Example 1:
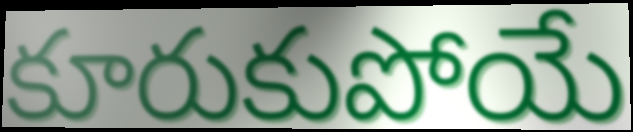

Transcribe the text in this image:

కూరుకుపోయే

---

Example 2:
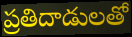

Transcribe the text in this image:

ప్రతిదాడులతో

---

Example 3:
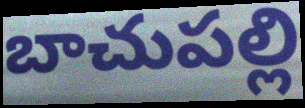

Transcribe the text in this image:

బాచుపల్లి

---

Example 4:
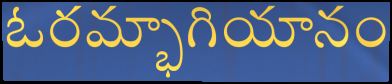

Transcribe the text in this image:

ఓరమ్భాగియానం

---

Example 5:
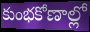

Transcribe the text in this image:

కుంభకోణాల్లో